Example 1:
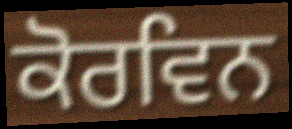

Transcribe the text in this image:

ਕੋਰਵਿਨ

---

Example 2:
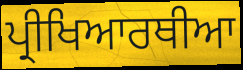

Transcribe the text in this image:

ਪ੍ਰੀਖਿਆਰਥੀਆ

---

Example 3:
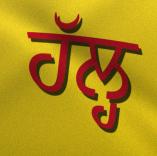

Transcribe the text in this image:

ਹੱਲ੍ਹ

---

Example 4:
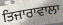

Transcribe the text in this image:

ਤਿਜਾਰਾਵਾਲਾ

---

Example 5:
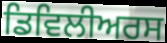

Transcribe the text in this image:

ਡਿਵਿਲੀਅਰਸ